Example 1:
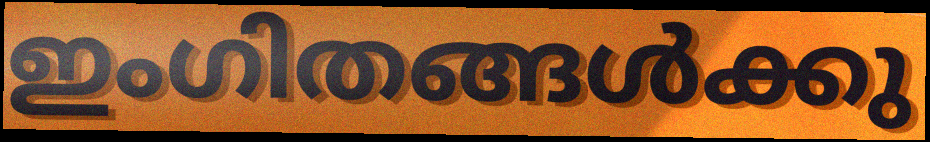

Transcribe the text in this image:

ഇംഗിതങ്ങൾക്കു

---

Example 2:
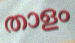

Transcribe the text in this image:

താളം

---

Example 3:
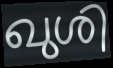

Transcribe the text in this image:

ഖുശി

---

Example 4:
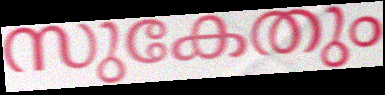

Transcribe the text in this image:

സുകേതും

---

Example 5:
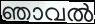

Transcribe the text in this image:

ഞാവൽ